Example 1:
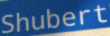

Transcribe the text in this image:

Shubert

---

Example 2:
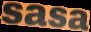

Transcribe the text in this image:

sasa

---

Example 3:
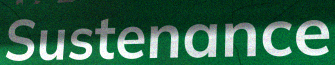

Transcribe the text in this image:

Sustenance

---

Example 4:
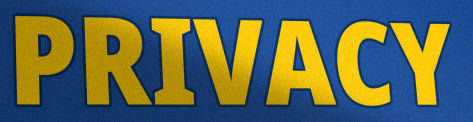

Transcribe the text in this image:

PRIVACY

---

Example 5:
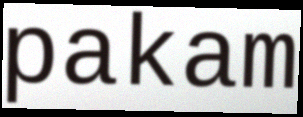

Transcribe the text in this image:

pakam